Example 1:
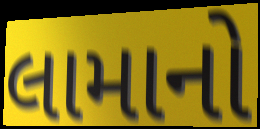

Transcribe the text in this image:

લામાનો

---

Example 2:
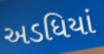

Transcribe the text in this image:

અડધિયાં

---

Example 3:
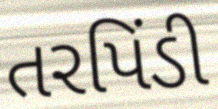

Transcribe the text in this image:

તરપિંડી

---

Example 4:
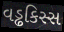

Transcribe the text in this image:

વડ્ઢકિસ્સ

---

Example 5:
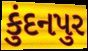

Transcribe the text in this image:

કુંદનપુર